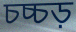
চচ্চড়